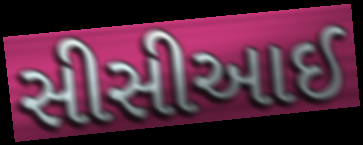
સીસીઆઈ